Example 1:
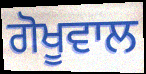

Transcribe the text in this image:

ਗੋਖੂਵਾਲ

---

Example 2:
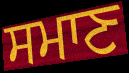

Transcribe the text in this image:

ਸਮਾਣ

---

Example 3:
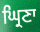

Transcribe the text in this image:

ਘ੍ਰਿਣਾ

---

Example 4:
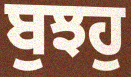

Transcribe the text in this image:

ਬੁਝਹੁ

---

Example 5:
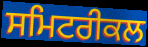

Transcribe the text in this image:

ਸਮਿਟਰੀਕਲ